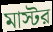
মাস্টর